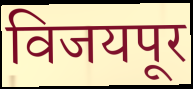
विजयपूर